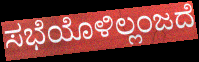
ಸಭೆಯೊಳಿಲ್ಲಂಜದೆ